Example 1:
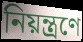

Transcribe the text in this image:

নিয়ন্ত্ৰণে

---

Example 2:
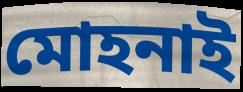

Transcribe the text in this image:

মোহনাই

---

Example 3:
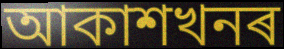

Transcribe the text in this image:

আকাশখনৰ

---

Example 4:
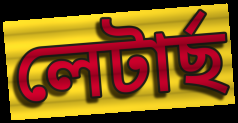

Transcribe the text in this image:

লেটাৰ্ছ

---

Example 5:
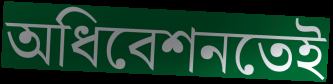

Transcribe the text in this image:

অধিবেশনতেই